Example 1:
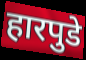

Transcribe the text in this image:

हारपुडे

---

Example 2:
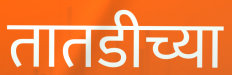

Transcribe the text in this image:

तातडीच्या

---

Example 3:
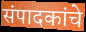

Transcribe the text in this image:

संपादकांचे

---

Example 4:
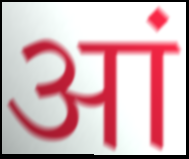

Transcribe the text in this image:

आं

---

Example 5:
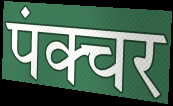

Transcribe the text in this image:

पंक्‍चर